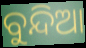
ବୁନ୍ଦିଆ